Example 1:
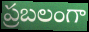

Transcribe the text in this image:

ప్రబలంగా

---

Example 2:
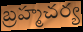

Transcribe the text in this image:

బ్రహ్మచర్య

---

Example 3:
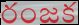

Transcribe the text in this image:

రంజక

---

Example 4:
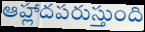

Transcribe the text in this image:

ఆహ్లాదపరుస్తుంది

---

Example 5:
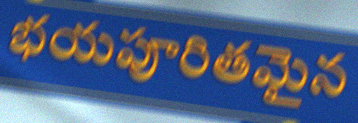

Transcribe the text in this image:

భయపూరితమైన